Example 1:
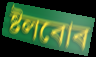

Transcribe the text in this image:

ষ্টলবোৰ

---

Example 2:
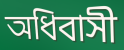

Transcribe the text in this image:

অধিবাসী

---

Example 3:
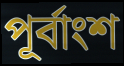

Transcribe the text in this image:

পূৰ্বাংশ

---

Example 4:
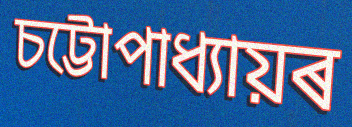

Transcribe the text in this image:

চট্টোপাধ্যায়ৰ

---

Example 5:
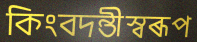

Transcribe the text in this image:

কিংবদন্তীস্বৰূপ